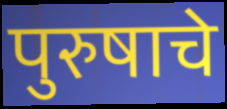
पुरुषाचे